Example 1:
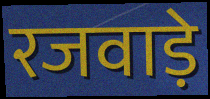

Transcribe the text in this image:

रजवाड़े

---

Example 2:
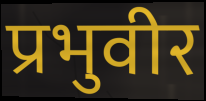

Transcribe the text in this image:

प्रभुवीर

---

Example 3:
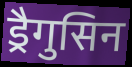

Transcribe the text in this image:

ड्रैगुसिन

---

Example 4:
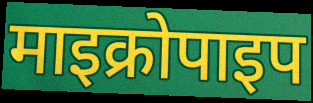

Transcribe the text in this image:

माइक्रोपाइप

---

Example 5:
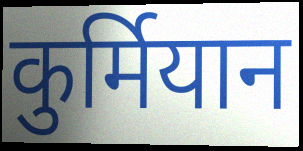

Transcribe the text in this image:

कुर्मियान